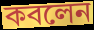
কবলেন